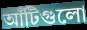
আঁটিগুলো